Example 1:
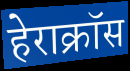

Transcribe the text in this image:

हेराक्रॉस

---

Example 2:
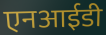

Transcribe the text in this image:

एनआईडी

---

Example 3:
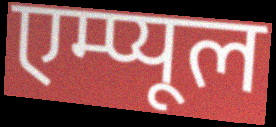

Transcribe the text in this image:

एम्प्यूल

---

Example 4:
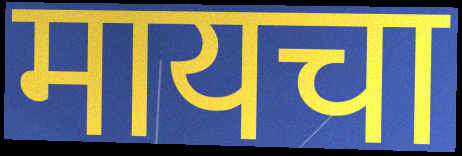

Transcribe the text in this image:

मायचा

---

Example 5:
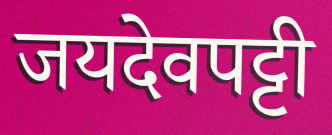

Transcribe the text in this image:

जयदेवपट्टी